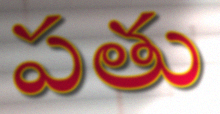
పతు